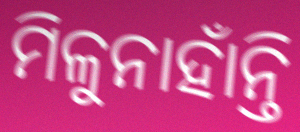
ମିଳୁନାହାଁନ୍ତି